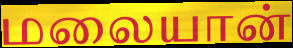
மலையான்